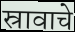
स्रावाचे